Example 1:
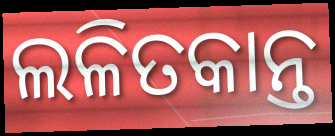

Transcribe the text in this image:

ଲଳିତକାନ୍ତ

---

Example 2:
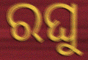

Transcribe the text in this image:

ରଘୁ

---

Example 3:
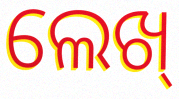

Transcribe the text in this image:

ଲେଖ୍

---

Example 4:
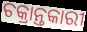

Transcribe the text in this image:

ଚକ୍ରାନ୍ତକାରୀ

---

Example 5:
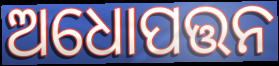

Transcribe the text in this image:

ଅଧୋପତ୍ତନ